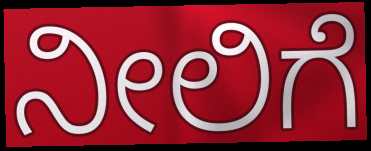
ನೀಲಿಗೆ